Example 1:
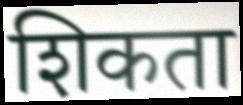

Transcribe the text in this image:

शिकता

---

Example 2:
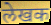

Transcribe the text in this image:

लेखक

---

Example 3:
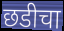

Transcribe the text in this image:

छडीचा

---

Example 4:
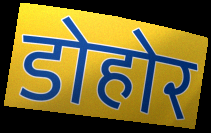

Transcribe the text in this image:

डोहोर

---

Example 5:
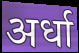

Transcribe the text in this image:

अर्धा